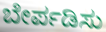
ಬೇರ್ಪಡಿಸು